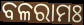
ବଳରାମଃ